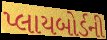
પ્લાયબોર્ડની